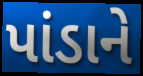
પાંડાને